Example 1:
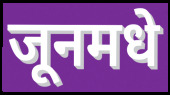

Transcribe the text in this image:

जूनमधे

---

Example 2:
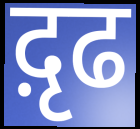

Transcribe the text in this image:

द़ृढ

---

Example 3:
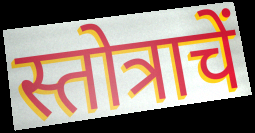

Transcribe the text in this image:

स्तोत्राचें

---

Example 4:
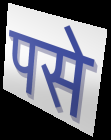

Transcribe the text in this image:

पसे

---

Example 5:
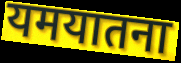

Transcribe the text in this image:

यमयातना